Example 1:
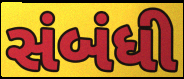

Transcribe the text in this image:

સંબંધી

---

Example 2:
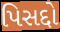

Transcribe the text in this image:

પિસદ્દો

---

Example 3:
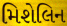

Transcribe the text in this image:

મિશેલિન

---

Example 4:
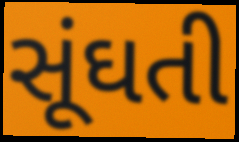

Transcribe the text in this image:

સૂંઘતી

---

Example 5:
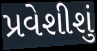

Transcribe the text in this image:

પ્રવેશીશું